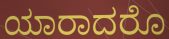
ಯಾರಾದರೊ